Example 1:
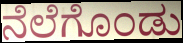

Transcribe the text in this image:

ನೆಲೆಗೊಂಡು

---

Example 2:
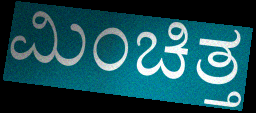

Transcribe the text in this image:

ಮಿಂಚಿತ್ತ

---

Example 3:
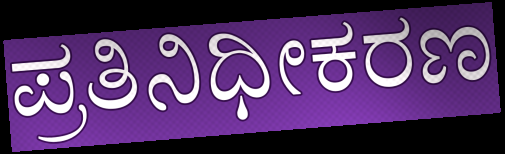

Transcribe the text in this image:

ಪ್ರತಿನಿಧೀಕರಣ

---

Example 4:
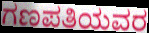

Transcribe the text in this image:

ಗಣಪತಿಯವರ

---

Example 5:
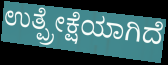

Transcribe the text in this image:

ಉತ್ಪ್ರೇಕ್ಷೆಯಾಗಿದೆ